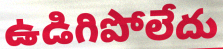
ఉడిగిపోలేదు